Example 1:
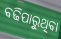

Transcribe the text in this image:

ବଢିପାରୁଥିବା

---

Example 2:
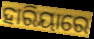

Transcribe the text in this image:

ହାରିୟାରେ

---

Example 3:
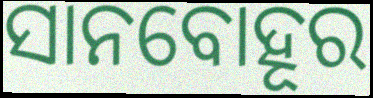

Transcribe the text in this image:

ସାନବୋହୂର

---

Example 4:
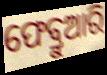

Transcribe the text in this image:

ଫେବ୍ରୁଆରି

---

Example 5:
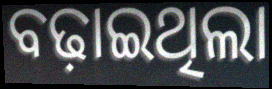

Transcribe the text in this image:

ବଢ଼ାଇଥିଲା